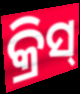
କ୍ରିସ୍